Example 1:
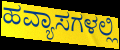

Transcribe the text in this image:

ಹವ್ಯಾಸಗಳಲ್ಲಿ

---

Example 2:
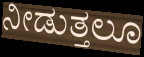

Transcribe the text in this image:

ನೀಡುತ್ತಲೂ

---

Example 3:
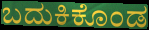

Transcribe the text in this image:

ಬದುಕಿಕೊಂಡ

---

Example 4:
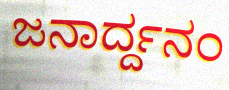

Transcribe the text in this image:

ಜನಾರ್ದ್ದನಂ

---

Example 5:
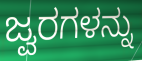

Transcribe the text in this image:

ಜ್ವರಗಳನ್ನು